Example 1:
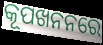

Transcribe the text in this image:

କୂପଖନନରେ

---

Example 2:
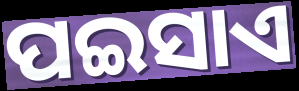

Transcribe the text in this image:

ପଇସାଏ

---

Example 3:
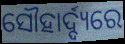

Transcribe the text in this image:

ସୌହାର୍ଦ୍ଦ୍ୟରେ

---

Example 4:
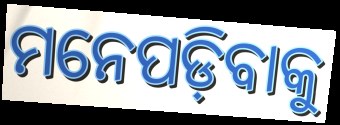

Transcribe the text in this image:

ମନେପଡ଼ିବାକୁ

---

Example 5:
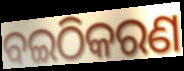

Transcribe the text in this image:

ବଇଠିକରଣ